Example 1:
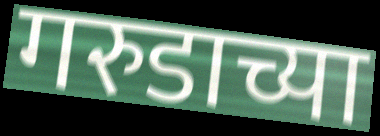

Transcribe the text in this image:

गरुडाच्या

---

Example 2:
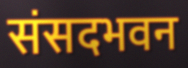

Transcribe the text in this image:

संसदभवन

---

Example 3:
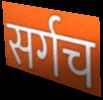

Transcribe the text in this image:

सर्गच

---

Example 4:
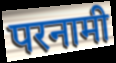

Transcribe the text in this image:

परनामी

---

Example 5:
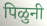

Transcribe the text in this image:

पिळुनी